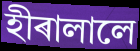
হীৰালালে